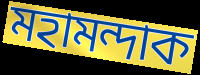
মহামন্দাক